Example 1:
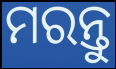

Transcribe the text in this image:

ମରନ୍ତୁ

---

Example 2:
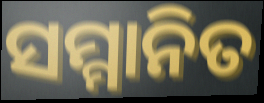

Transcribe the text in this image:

ସମ୍ମାନିତ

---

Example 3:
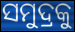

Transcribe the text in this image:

ସମୁଦ୍ରକୁ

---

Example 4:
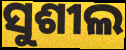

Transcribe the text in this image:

ସୁଶୀଲ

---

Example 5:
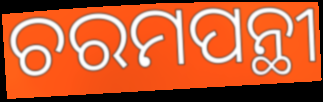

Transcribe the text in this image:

ଚରମପନ୍ଥୀ